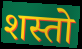
शस्तो